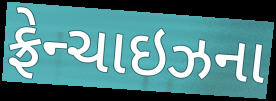
ફ્રેન્ચાઇઝના